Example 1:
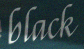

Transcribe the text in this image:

black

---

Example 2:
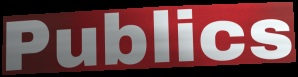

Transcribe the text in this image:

Publics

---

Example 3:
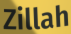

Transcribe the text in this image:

Zillah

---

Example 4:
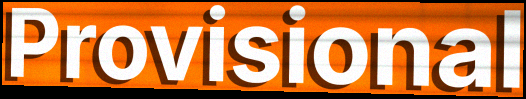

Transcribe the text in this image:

Provisional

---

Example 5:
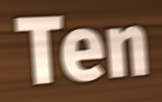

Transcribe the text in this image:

Ten